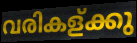
വരികള്ക്കു